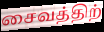
சைவத்திற்